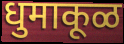
धुमाकूळ